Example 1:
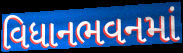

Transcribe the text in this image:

વિધાનભવનમાં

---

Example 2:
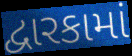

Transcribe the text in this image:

દ્વારકામાં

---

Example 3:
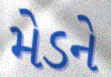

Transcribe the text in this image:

મેડને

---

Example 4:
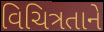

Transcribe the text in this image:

વિચિત્રતાને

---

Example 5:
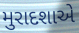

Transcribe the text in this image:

મુરાદશાએ